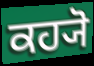
ਕਹ੍ਯੋ